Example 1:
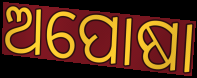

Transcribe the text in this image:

ଅପୋଷା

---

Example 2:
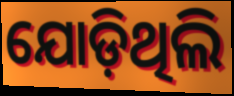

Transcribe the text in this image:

ଯୋଡ଼ିଥିଲି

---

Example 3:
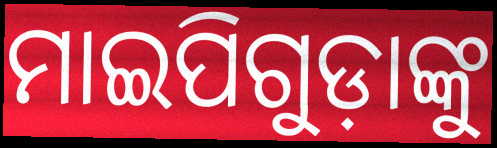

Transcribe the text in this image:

ମାଇପିଗୁଡ଼ାଙ୍କୁ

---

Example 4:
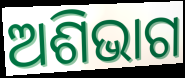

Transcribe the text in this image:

ଅଶିଭାଗ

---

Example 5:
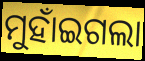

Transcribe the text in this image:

ମୁହାଁଇଗଲା